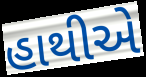
હાથીએ